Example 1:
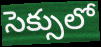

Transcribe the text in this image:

సెక్సులో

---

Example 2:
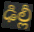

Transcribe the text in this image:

ఢిల్లీ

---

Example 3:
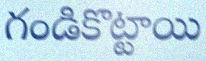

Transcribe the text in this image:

గండికొట్టాయి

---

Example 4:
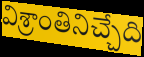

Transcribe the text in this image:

విశ్రాంతినిచ్చేది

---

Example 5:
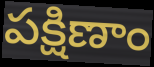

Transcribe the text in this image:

పక్షిణాం